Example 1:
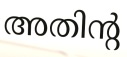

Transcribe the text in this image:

അതിന്റ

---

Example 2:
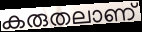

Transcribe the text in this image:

കരുതലാണ്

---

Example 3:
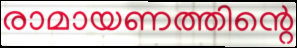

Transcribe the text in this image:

രാമായണത്തിന്റെ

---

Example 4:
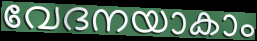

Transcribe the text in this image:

വേദനയാകാം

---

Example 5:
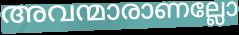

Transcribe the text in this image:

അവന്മാരാണല്ലോ